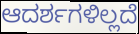
ಆದರ್ಶಗಳಿಲ್ಲದೆ